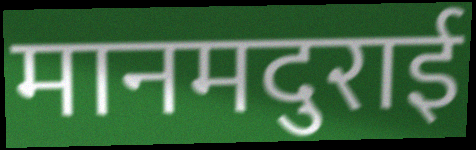
मानमदुराई